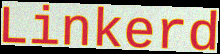
Linkerd